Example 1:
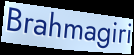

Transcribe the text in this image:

Brahmagiri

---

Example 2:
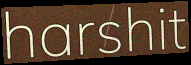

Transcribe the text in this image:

harshit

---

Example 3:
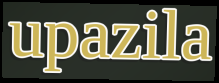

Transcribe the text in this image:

upazila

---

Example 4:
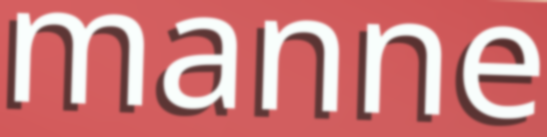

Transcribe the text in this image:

manne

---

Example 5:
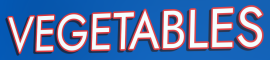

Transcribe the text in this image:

VEGETABLES